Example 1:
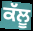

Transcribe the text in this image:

ਕੱਲੂ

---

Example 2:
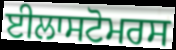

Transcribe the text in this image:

ਈਲਾਸਟੋਮਰਸ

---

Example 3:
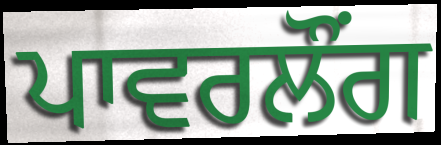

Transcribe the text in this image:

ਪਾਵਰਲੌਂਗ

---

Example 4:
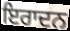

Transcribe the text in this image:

ਇਰਾਦਨ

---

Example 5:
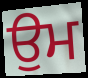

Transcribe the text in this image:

ਉਮ